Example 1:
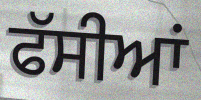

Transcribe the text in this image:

ਫੱਸੀਆਂ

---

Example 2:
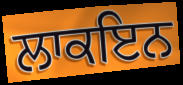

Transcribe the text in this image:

ਲਾਕਇਨ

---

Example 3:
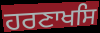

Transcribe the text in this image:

ਹਰਣਾਖਸਿ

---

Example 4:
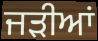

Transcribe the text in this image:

ਜੜੀਆਂ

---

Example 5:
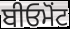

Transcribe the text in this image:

ਬੀਓਮੋਂਟ